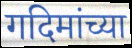
गदिमांच्या